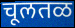
चूलतळ